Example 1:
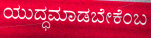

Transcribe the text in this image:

ಯುದ್ಧಮಾಡಬೇಕೆಂಬ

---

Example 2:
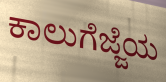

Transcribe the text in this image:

ಕಾಲುಗೆಜ್ಜೆಯ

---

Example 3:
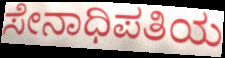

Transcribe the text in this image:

ಸೇನಾಧಿಪತಿಯ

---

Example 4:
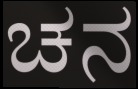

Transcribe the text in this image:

ಚನ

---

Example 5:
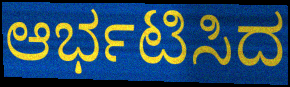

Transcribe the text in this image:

ಆರ್ಭಟಿಸಿದ